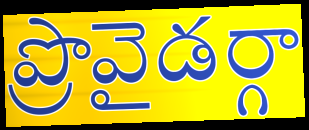
ప్రొవైడర్గా